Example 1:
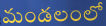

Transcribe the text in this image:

మండలంలో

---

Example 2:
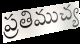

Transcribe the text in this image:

ప్రతిముచ్య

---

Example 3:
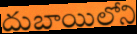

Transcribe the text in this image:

దుబాయిలోని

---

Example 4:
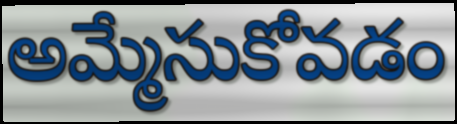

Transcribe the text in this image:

అమ్మేసుకోవడం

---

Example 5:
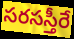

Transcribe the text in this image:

సరసస్తీరే